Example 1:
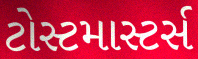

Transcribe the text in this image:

ટોસ્ટમાસ્ટર્સ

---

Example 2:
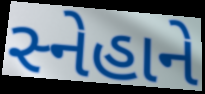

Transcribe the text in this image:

સ્નેહાને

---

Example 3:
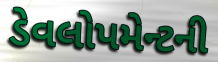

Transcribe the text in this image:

ડેવલોપમેન્ટની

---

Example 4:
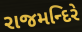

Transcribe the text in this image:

રાજમન્દિરે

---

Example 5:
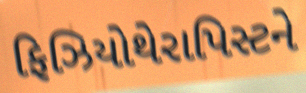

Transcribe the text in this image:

ફિઝિયોથેરાપિસ્ટને